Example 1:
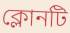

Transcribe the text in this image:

ক্লোনটি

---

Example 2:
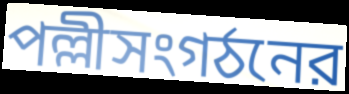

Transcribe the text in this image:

পল্লীসংগঠনের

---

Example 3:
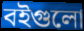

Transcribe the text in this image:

বইগুলো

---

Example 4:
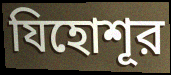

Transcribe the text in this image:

যিহোশূর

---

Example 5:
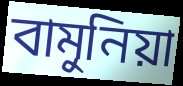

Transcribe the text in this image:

বামুনিয়া